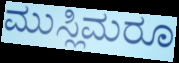
ಮುಸ್ಲಿಮರೂ